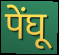
पेंघू